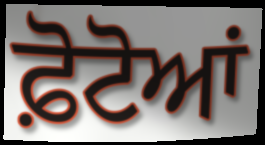
ਫ਼ੋਟੋਆਂ